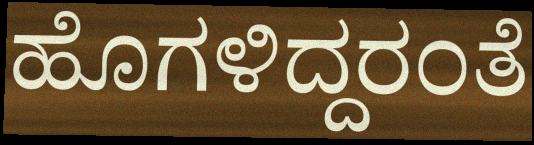
ಹೊಗಳಿದ್ದರಂತೆ